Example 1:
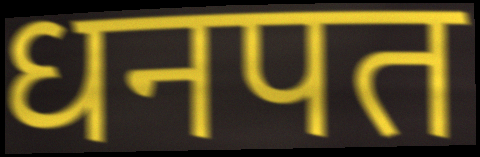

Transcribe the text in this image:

धनपत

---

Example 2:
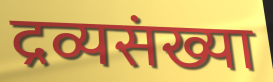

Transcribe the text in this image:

द्रव्यसंख्या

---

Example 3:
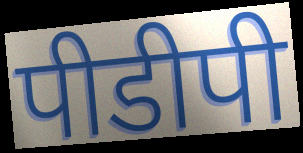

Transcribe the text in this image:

पीडीपी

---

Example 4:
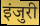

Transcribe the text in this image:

इंजुरी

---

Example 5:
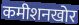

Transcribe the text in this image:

कमीशनखोर